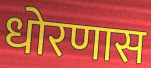
धोरणास